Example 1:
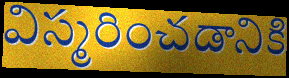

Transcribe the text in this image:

విస్మరించడానికి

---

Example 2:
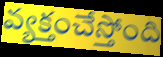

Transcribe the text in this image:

వ్యక్తంచేస్తోంది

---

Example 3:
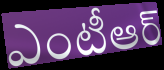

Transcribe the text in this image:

ఎంటీఆర్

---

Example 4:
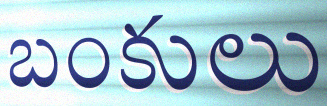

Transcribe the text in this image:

బంకులు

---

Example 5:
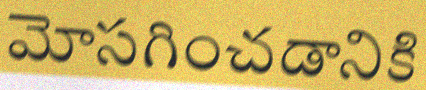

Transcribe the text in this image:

మోసగించడానికి